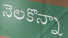
నెలకొన్నా